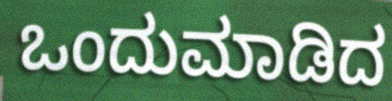
ಒಂದುಮಾಡಿದ